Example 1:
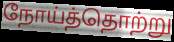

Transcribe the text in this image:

நோய்த்தொற்று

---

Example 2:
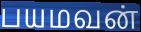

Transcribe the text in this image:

பயமவன்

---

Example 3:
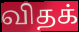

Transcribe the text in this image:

விதக்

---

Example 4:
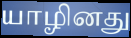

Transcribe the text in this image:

யாழினது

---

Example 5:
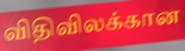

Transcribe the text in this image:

விதிவிலக்கான